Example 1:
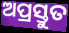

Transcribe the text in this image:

ଅପ୍ରସ୍ତୁତ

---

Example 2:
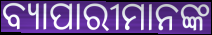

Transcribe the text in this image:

ବ୍ୟାପାରୀମାନଙ୍କ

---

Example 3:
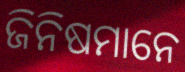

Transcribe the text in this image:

ଜିନିଷମାନେ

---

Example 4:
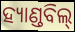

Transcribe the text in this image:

ହ୍ୟାଣ୍ଡବିଲ୍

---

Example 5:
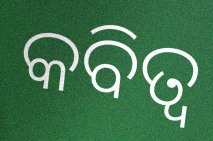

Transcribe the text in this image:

କବିତ୍ବ